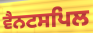
ਵੈਨਟਸਪਿਲ